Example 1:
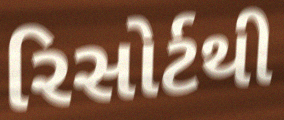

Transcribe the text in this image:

રિસોર્ટથી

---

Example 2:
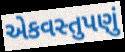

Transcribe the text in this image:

એકવસ્તુપણું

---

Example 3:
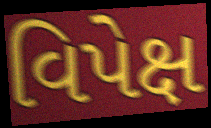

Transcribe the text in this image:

વિપેક્ષ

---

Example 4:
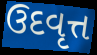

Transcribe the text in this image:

ઉદવૃત્ત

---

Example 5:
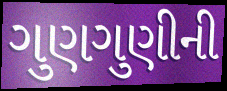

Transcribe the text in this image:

ગુણગુણીની